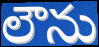
లౌను